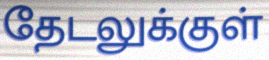
தேடலுக்குள்